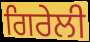
ਗਿਰੇਲੀ